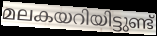
മലകയറിയിട്ടുണ്ട്